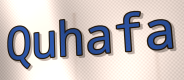
Quhafa